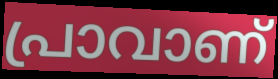
പ്രാവാണ്